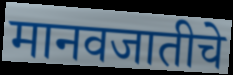
मानवजातीचे